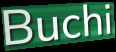
Buchi